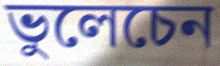
ভুলেচেন